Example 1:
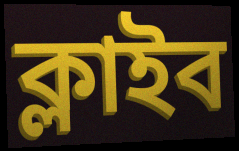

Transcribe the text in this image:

ক্লাইব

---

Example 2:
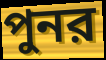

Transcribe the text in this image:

পুনর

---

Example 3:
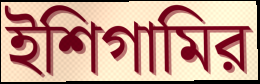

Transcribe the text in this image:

ইশিগামির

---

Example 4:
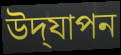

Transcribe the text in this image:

উদ্‌যাপন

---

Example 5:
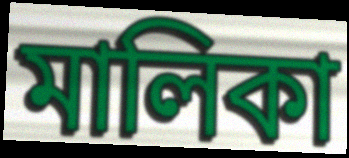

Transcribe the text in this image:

মালিকা